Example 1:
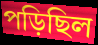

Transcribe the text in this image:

পড়িছিল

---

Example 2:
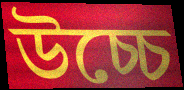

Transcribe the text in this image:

উচ্চে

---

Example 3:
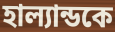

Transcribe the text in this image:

হাল্যান্ডকে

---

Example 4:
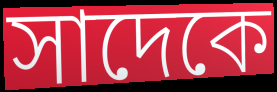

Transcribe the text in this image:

সাদেকে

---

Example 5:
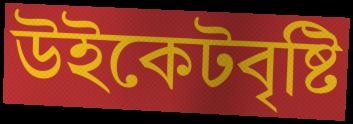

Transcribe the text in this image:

উইকেটবৃষ্টি